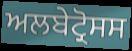
ਅਲਬੇਟ੍ਰੋਸਸ